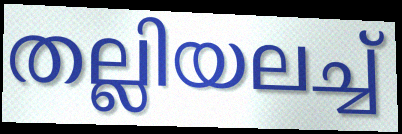
തല്ലിയലച്ച്